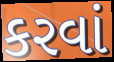
કરવાં